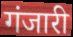
गंजारी